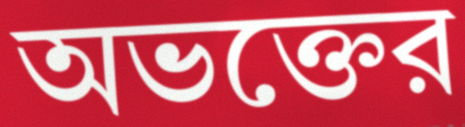
অভক্তের